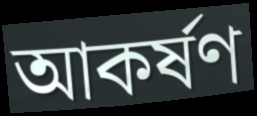
আকৰ্ষণ